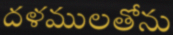
దళములతోను